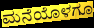
ಮನೆಯೊಳಗೂ